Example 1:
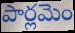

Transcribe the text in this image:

పార్లమెం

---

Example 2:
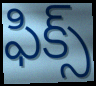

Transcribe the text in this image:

ఫిక్స్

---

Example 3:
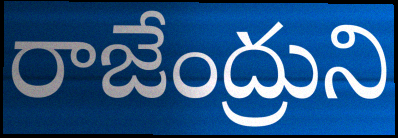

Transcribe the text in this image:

రాజేంద్రుని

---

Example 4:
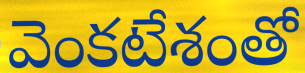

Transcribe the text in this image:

వెంకటేశంతో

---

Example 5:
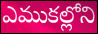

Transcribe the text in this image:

ఎముకల్లోని